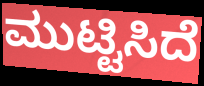
ಮುಟ್ಟಿಸಿದೆ